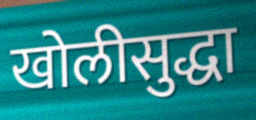
खोलीसुद्धा